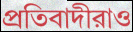
প্রতিবাদীরাও